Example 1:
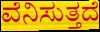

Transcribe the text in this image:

ವೆನಿಸುತ್ತದೆ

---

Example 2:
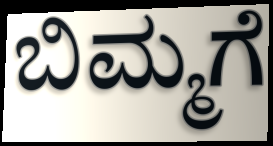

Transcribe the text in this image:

ಬಿಮ್ಮಗೆ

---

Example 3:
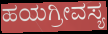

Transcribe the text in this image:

ಹಯಗ್ರೀವಸ್ಯ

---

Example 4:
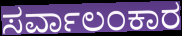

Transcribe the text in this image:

ಸರ್ವಾಲಂಕಾರ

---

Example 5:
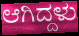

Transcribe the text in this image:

ಆಗಿದ್ದಳು